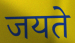
जयते